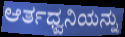
ಆರ್ತಧ್ವನಿಯನ್ನು